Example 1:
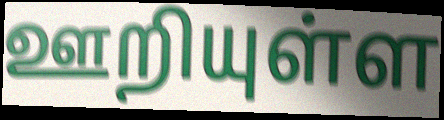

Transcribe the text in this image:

ஊறியுள்ள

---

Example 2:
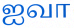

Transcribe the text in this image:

ஐவா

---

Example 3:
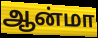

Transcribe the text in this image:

ஆன்மா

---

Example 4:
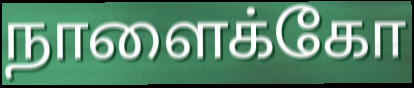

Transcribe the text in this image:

நாளைக்கோ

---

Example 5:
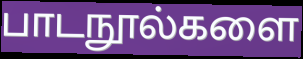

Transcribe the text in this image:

பாடநூல்களை